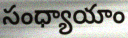
సంధ్యాయాం